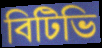
বিটিভি